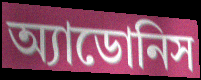
অ্যাডোনিস